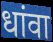
धांवा